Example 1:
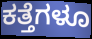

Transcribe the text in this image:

ಕತ್ತೆಗಳೂ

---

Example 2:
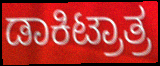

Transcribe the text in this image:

ಡಾಕಿಟ್ರಾತ್ರ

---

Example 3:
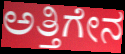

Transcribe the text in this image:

ಅತ್ತಿಗೇನ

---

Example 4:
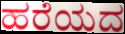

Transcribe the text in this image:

ಹರೆಯದ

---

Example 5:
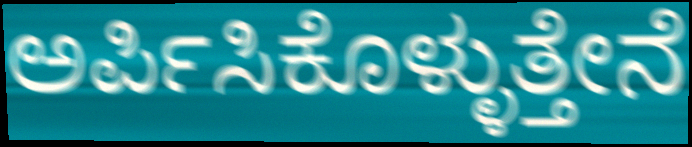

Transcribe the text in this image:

ಅರ್ಪಿಸಿಕೊಳ್ಳುತ್ತೇನೆ